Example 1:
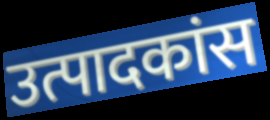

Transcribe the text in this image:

उत्पादकांस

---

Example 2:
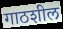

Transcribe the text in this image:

गाठशील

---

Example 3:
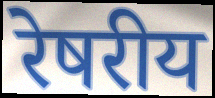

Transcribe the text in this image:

रेषरीय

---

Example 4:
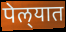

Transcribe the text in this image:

पेल्यात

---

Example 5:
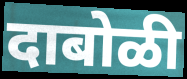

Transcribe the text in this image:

दाबोळी